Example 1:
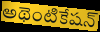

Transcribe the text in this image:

అథెంటికేషన్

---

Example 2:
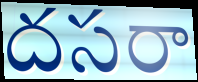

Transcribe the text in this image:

దసరా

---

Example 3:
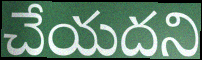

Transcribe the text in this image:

చేయదని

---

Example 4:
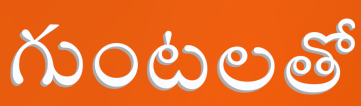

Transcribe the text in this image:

గుంటలతో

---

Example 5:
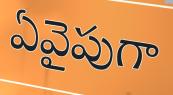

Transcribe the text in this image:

ఏవైపుగా